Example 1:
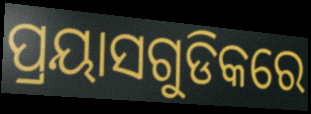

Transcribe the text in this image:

ପ୍ରୟାସଗୁଡିକରେ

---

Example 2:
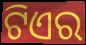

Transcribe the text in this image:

ଟିଏର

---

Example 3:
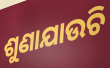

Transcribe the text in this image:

ଶୁଣାଯାଉଚି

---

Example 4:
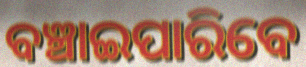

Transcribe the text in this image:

ବଞ୍ଚାଇପାରିବେ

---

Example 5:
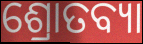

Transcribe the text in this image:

ଶ୍ରୋତବ୍ୟା